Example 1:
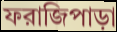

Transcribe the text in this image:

ফরাজিপাড়া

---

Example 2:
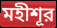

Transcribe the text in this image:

মহীশূর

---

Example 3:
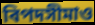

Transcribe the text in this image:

বিপদসীমাও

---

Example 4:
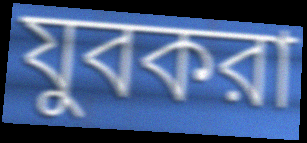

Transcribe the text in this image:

যুবকরা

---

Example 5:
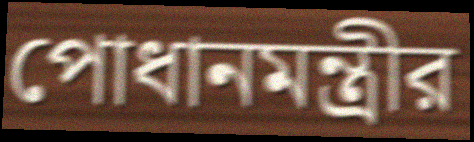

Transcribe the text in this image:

পোধানমন্ত্রীর